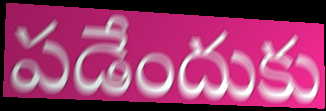
పడేందుకు